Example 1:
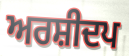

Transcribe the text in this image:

ਅਰਸ਼ੀਦਪ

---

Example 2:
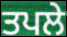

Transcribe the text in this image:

ਤਪਲੇ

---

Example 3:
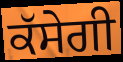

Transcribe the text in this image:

ਕੱਸੇਗੀ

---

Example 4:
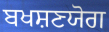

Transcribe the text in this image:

ਬਖਸ਼ਣਯੋਗ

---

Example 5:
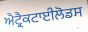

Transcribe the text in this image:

ਐਟ੍ਰੈਕਟਾਈਲੋਡਸ